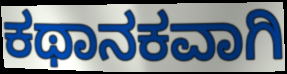
ಕಥಾನಕವಾಗಿ